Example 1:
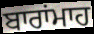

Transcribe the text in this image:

ਬਾਰਾਂਮਾਹ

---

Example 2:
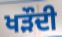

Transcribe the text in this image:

ਖੜੌਦੀ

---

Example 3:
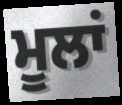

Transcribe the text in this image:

ਮੂਲਾਂ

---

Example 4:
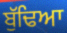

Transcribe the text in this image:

ਬੁੱਢਿਆ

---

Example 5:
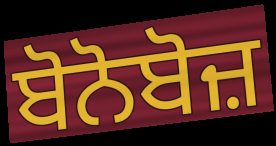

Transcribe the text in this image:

ਬੋਨੋਬੋਜ਼